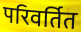
परिवर्तित